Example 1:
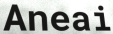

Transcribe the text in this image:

Aneai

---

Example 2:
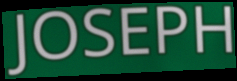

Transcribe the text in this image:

JOSEPH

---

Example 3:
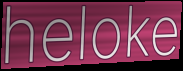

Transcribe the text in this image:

heloke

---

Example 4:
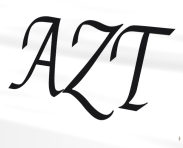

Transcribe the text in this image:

AZT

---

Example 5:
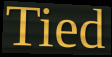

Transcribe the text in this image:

Tied